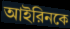
আইরিনকে